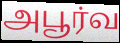
அபூர்வ